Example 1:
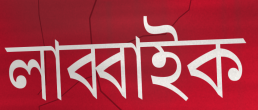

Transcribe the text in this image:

লাব্বাইক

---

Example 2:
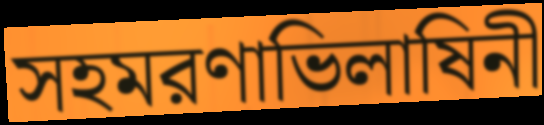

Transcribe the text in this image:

সহমরণাভিলাষিনী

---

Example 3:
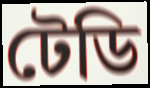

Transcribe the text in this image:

টেডি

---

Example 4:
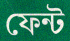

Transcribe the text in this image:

ফেন্ট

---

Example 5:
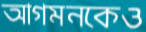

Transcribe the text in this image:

আগমনকেও